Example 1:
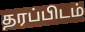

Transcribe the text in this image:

தரப்பிடம்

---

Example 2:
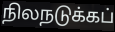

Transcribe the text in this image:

நிலநடுக்கப்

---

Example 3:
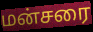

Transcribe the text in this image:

மன்சரை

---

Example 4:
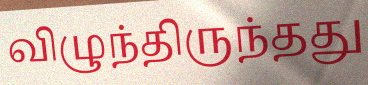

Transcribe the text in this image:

விழுந்திருந்தது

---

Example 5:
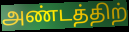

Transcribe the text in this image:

அண்டத்திற்